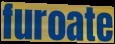
furoate